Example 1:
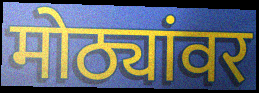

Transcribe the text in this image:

मोठ्यांवर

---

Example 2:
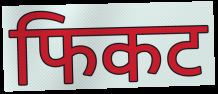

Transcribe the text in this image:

फिकट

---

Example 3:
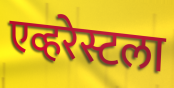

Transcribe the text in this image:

एव्हरेस्टला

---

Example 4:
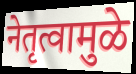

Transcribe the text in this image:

नेतृत्वामुळे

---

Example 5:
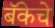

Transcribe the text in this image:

बॅकेचे